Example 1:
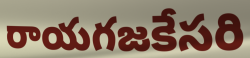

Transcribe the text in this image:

రాయగజకేసరి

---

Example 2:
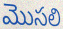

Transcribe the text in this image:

మొసలి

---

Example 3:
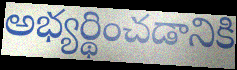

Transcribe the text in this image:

అభ్యర్థించడానికి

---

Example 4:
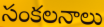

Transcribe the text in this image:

సంకలనాలు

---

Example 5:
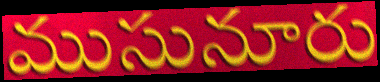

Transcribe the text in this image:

ముసునూరు